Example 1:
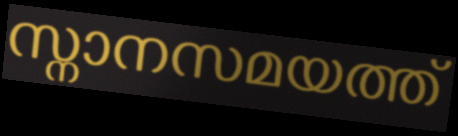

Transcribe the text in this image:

സ്നാനസമയത്ത്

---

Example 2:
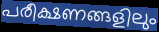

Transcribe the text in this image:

പരീക്ഷണങ്ങളിലും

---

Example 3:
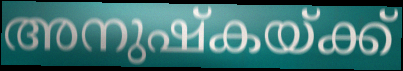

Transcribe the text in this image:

അനുഷ്കയ്ക്ക്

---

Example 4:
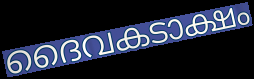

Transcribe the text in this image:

ദൈവകടാക്ഷം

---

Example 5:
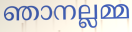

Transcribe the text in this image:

ഞാനല്ലമ്മ